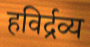
हविर्द्रव्य